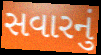
સવારનું